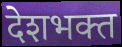
देशभक्त